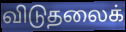
விடுதலைக்